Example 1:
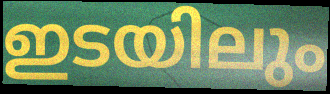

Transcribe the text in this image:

ഇടയിലും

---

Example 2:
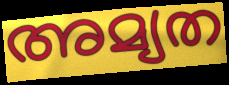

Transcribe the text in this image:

അമ്യത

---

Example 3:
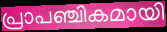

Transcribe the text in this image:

പ്രാപഞ്ചികമായി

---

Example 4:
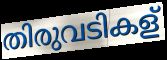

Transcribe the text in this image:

തിരുവടികള്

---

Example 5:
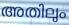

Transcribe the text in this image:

അതിലും